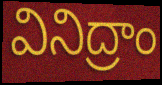
వినిద్రాం